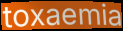
toxaemia